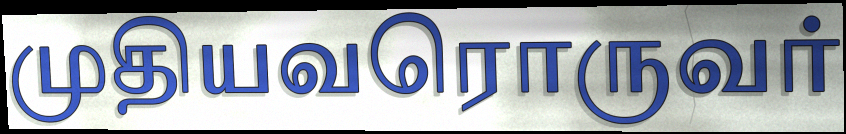
முதியவரொருவர்